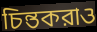
চিন্তকরাও